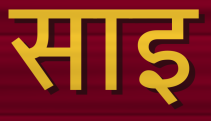
साइ